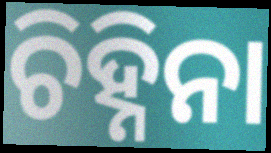
ଚିହ୍ନିନା